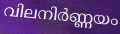
വിലനിർണ്ണയം